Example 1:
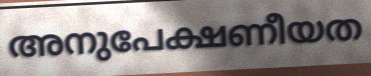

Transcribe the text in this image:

അനുപേക്ഷണീയത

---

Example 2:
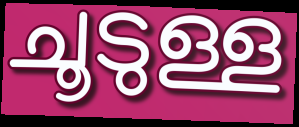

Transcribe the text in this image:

ചൂടുള്ള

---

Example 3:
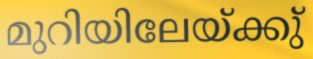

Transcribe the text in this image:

മുറിയിലേയ്ക്കു്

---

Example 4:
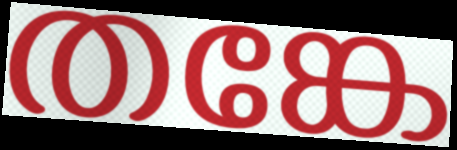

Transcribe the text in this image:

തങ്കേ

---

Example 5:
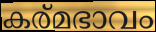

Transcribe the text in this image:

കര്മഭാവം